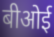
बीओई